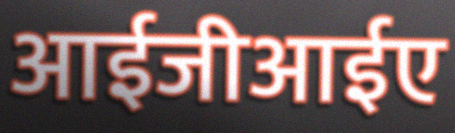
आईजीआईए